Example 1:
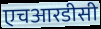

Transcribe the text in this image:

एचआरडीसी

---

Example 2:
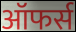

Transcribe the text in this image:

ऑफर्स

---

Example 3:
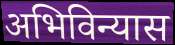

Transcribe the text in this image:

अभिविन्यास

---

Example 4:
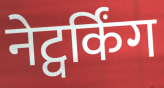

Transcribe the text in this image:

नेट्वर्किंग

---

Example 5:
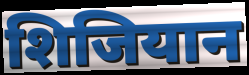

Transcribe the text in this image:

शिजियान